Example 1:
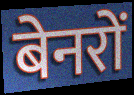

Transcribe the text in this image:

बेनरों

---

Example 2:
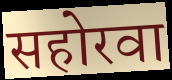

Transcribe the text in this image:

सहोरवा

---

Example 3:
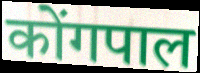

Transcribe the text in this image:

कोंगपाल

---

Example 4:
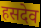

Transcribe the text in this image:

हसदेव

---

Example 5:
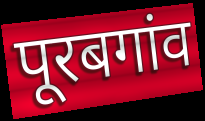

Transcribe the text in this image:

पूरबगांव